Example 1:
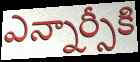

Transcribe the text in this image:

ఎన్నార్సీకి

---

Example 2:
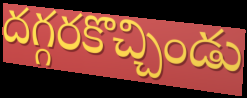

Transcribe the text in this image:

దగ్గరకొచ్చిండు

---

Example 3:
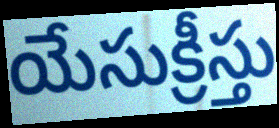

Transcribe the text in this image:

యేసుక్రీస్తు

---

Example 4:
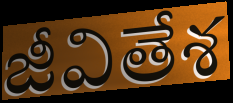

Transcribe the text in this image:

జీవితేశ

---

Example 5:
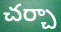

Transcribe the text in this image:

చర్చా